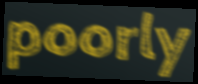
poorly